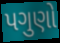
પગુણો